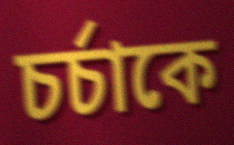
চর্চাকে